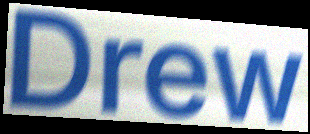
Drew